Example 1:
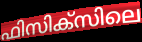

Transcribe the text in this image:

ഫിസിക്സിലെ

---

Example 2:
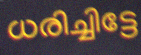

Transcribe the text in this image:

ധരിച്ചിട്ടേ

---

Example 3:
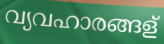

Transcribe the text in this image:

വ്യവഹാരങ്ങള്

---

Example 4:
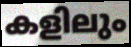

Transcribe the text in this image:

കളിലും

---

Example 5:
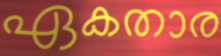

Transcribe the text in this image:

ഏകതാര